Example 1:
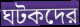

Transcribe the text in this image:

ঘটকদের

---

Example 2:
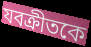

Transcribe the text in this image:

যবক্রীতকে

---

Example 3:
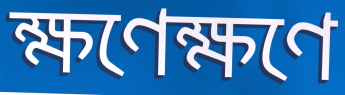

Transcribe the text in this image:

ক্ষণেক্ষণে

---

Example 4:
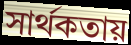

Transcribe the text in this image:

সার্থকতায়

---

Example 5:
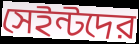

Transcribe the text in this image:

সেইন্টদের